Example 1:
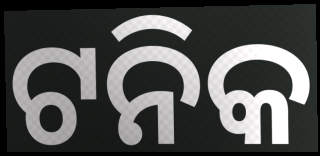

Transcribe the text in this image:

ଟନିକ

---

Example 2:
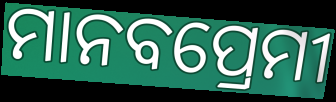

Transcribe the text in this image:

ମାନବପ୍ରେମୀ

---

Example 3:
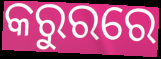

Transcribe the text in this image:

କରୁରରେ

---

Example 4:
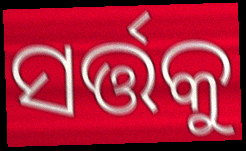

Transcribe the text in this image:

ସର୍ତ୍ତକୁ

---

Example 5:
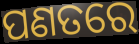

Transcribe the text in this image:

ପଣତରେ